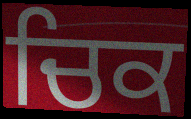
ਚਿਕ